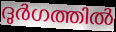
ദുർഗത്തിൽ